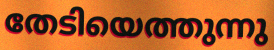
തേടിയെത്തുന്നു